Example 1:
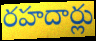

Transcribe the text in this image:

రహదార్లు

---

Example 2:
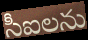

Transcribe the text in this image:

సీఐలను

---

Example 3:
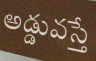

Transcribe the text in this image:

అడ్డువస్తే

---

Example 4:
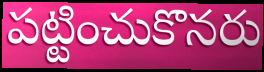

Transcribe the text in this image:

పట్టించుకొనరు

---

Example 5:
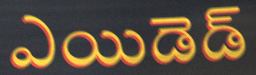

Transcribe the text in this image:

ఎయిడెడ్